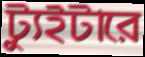
ট্যুইটারে